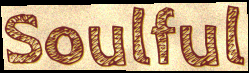
Soulful